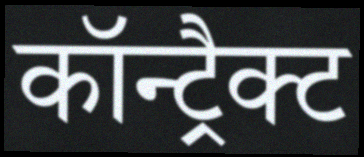
कॉन्ट्रैक्ट